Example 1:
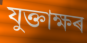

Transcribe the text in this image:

যুক্তাক্ষৰ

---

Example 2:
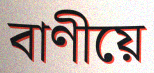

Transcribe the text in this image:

বাণীয়ে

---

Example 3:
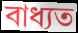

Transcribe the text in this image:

বাধ্যত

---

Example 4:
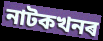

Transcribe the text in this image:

নাটকখনৰ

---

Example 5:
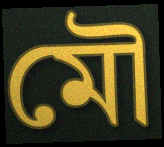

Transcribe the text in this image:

মৌ